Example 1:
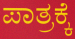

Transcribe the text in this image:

ಪಾತ್ರಕ್ಕೆ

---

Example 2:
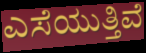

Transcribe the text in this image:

ಎಸೆಯುತ್ತಿವೆ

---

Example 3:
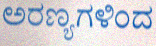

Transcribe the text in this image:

ಅರಣ್ಯಗಳಿಂದ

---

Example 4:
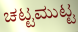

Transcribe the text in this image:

ಚಟ್ಟಮುಟ್ಟ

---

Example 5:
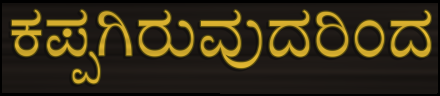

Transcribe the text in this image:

ಕಪ್ಪಗಿರುವುದರಿಂದ